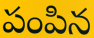
పంపిన